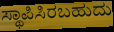
ಸ್ಥಾಪಿಸಿರಬಹುದು